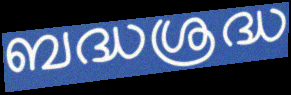
ബദ്ധശ്രദ്ധ